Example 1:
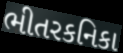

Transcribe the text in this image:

ભીતરકનિકા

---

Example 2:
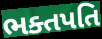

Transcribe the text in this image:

ભક્તપતિ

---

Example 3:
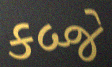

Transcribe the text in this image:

કબ્જે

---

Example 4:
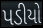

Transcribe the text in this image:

પડીયો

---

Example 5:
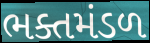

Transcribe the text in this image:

ભક્તમંડળ